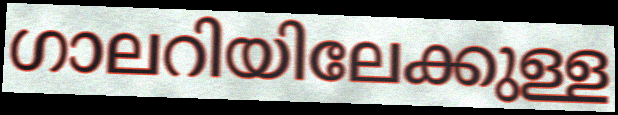
ഗാലറിയിലേക്കുള്ള